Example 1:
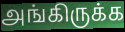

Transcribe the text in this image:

அங்கிருக்க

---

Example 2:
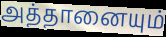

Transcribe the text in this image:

அத்தானையும்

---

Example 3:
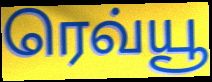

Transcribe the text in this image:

ரெவ்யூ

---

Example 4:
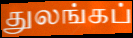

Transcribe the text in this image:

துலங்கப்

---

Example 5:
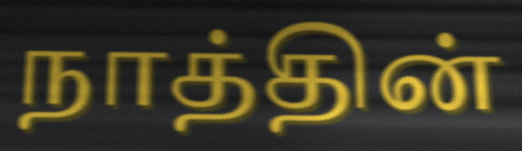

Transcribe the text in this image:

நாத்தின்